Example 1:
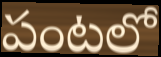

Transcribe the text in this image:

పంటలో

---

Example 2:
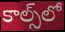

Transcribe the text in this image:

కాల్స్‌లో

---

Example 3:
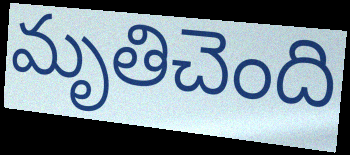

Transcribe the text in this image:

మృతిచెంది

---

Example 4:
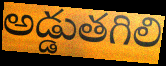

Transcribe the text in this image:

అడ్డుతగిలి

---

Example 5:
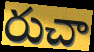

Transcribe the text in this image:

రుచా